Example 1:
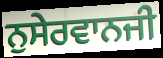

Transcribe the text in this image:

ਨੁਸੇਰਵਾਨਜੀ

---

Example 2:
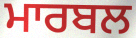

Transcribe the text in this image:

ਮਾਰਬਲ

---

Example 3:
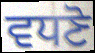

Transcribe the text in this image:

ਵਧਣੋ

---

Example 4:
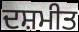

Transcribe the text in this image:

ਦਸ਼ਮੀਤ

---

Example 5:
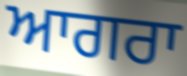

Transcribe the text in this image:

ਆਗਰਾ